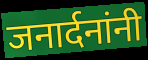
जनार्दनांनी